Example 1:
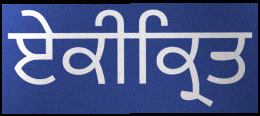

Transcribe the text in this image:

ਏਕੀਕ੍ਰਿਤ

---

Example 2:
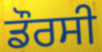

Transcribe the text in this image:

ਡੌਰਸੀ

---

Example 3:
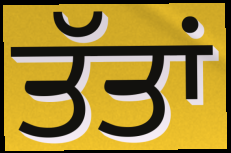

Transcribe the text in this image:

ਤੱਤਾਂ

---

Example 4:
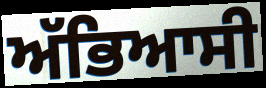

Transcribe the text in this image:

ਅੱਭਿਆਸੀ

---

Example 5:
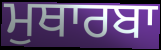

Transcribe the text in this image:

ਮੁਥਾਰਬਾ